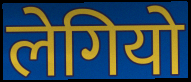
लेगियो